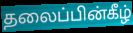
தலைப்பின்கீழ்